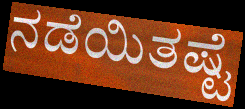
ನಡೆಯಿತಷ್ಟೆ